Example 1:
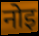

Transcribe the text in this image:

नोइ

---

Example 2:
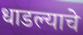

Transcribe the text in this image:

धाडल्याचे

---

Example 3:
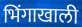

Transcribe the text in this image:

भिंगाखाली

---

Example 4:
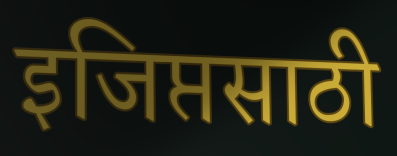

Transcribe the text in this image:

इजिप्तसाठी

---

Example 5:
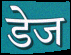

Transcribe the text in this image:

डेज